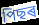
পিছৰ